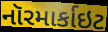
નૉરમાર્કાઇટ